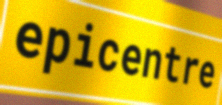
epicentre